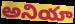
అనియా